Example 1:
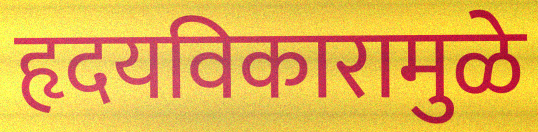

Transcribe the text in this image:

हृदयविकारामुळे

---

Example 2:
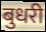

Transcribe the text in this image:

बुधरी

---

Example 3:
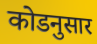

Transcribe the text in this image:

कोडनुसार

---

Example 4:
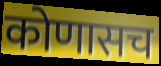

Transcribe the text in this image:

कोणासच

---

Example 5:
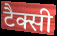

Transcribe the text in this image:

टैक्सी